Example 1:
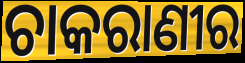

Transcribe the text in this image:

ଚାକରାଣୀର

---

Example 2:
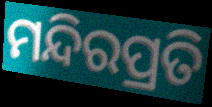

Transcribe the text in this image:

ମନ୍ଦିରପ୍ରତି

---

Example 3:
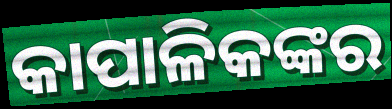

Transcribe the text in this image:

କାପାଳିକଙ୍କର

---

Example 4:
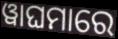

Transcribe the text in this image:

ୱାଘମାରେ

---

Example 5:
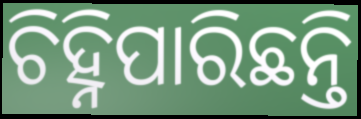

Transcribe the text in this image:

ଚିହ୍ନିପାରିଛନ୍ତି